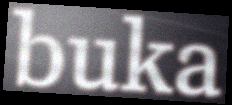
buka